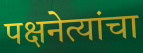
पक्षनेत्यांचा